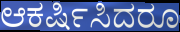
ಆಕರ್ಷಿಸಿದರೂ